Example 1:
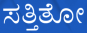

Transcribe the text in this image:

ಸತ್ತಿತೋ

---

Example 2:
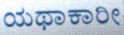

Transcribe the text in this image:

ಯಥಾಕಾರೀ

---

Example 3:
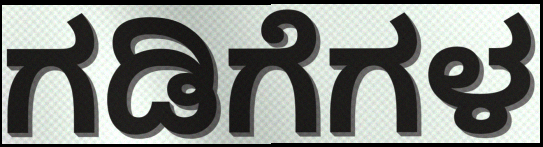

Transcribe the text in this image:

ಗಡಿಗೆಗಳ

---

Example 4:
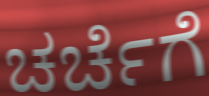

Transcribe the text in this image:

ಚರ್ಚೆಗೆ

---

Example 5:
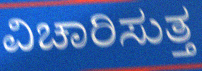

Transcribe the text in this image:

ವಿಚಾರಿಸುತ್ತ